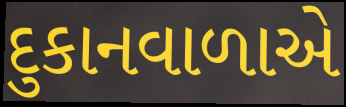
દુકાનવાળાએ